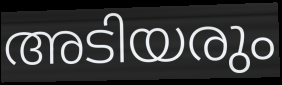
അടിയരും